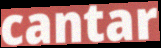
cantar